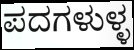
ಪದಗಳುಳ್ಳ